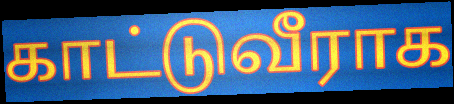
காட்டுவீராக